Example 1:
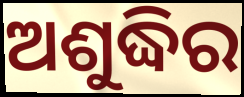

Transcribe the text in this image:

ଅଶୁଦ୍ଧିର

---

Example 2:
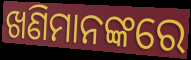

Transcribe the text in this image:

ଖଣିମାନଙ୍କରେ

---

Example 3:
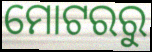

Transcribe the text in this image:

ମୋଟରରୁ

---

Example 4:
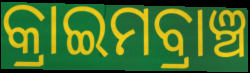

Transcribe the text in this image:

କ୍ରାଇମବ୍ରାଞ୍ଚ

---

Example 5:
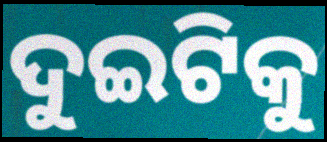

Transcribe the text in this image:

ଦୁଇଟିକୁ